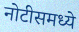
नोटीसमध्ये